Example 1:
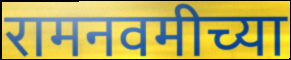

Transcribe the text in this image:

रामनवमीच्या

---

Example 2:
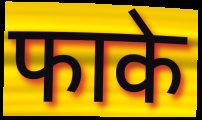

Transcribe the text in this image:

फाके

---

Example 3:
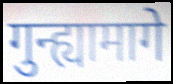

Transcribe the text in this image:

गुन्ह्यामागे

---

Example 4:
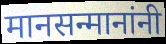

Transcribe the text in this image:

मानसन्मानांनी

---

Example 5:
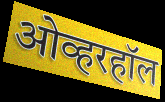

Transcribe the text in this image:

ओव्हरहॉल